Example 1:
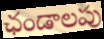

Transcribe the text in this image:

ఛండాలపు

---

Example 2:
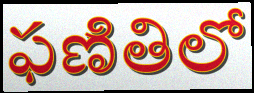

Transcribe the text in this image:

ఫణితిలో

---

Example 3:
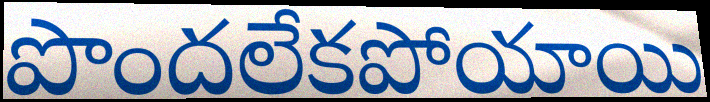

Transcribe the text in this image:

పొందలేకపోయాయి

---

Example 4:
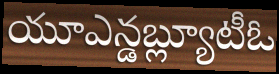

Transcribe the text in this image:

యూఎన్డబ్ల్యూటీఓ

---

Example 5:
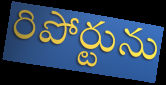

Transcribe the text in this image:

రిపోర్టును